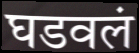
घडवलं